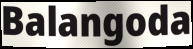
Balangoda